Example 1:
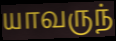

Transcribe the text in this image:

யாவருந்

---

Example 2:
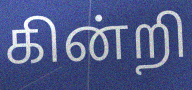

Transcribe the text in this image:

கின்றி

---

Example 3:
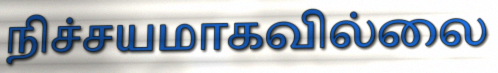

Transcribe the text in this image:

நிச்சயமாகவில்லை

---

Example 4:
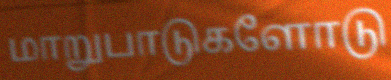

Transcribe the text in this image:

மாறுபாடுகளோடு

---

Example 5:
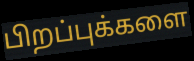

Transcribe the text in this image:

பிறப்புக்களை